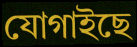
যোগাইছে